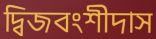
দ্বিজবংশীদাস